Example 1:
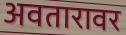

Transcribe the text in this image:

अवतारावर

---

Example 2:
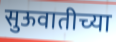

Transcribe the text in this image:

सुऊवातीच्या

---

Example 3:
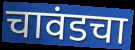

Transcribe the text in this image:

चावंडचा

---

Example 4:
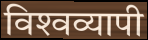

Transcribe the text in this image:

विश्‍वव्यापी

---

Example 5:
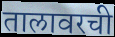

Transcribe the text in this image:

तालावरची